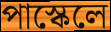
পাস্কেলে